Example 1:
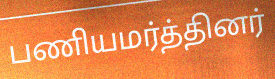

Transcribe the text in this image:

பணியமர்த்தினர்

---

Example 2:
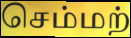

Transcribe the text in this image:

செம்மற்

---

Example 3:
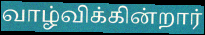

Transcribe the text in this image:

வாழ்விக்கின்றார்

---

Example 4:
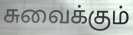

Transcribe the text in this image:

சுவைக்கும்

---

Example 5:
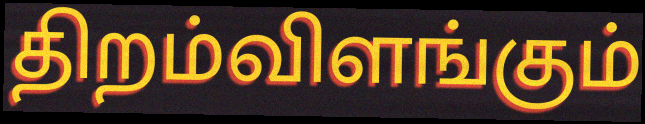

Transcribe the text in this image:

திறம்விளங்கும்